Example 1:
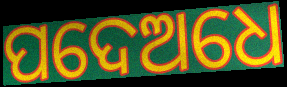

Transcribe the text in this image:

ପଦେଅଧେ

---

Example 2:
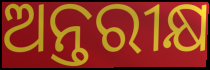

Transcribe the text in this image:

ଅନ୍ତରୀକ୍ଷ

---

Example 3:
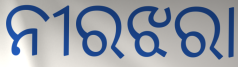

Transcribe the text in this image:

ନୀରଝରା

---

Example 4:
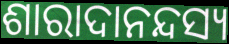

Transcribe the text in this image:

ଶାରାଦାନନ୍ଦସ୍ୟ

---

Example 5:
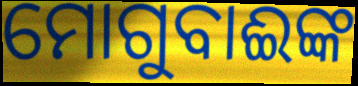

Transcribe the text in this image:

ମୋଗୁବାଈଙ୍କ